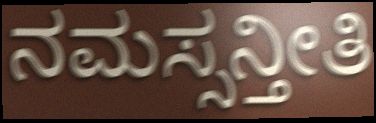
ನಮಸ್ಸನ್ತೀತಿ